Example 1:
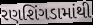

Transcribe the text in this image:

રણશિંગડામાંથી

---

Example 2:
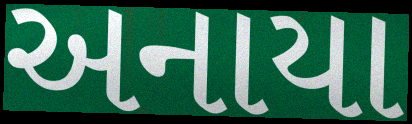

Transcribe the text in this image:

અનાયા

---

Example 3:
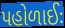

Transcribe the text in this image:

પહોળાઈઃ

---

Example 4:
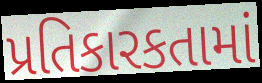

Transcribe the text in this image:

પ્રતિકારકતામાં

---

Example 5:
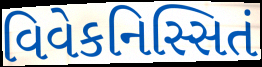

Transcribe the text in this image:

વિવેકનિસ્સિતં